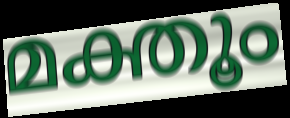
മക്തൂം